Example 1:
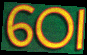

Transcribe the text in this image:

ଠୋ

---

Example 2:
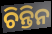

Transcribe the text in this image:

ଚିନ୍ତିନ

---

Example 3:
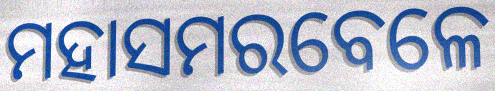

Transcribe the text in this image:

ମହାସମରବେଳେ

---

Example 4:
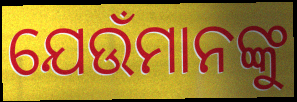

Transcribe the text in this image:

ଯେଉଁମାନଙ୍କୁ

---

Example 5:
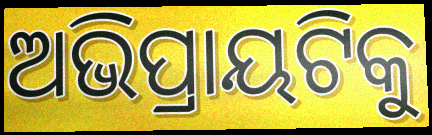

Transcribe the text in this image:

ଅଭିପ୍ରାୟଟିକୁ